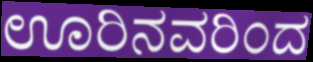
ಊರಿನವರಿಂದ